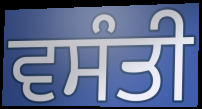
ਵਸੰਤੀ